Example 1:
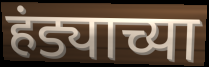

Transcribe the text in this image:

हंड्याच्या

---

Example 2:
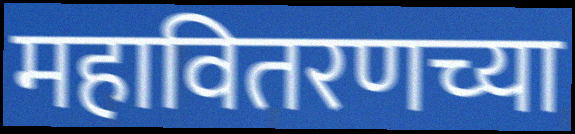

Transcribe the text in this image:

महावितरणच्या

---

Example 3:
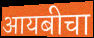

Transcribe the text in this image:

आयबीचा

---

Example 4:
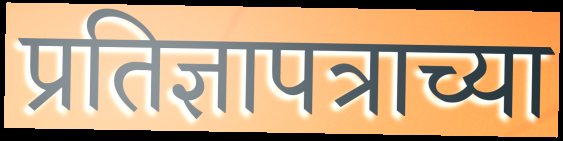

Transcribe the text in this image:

प्रतिज्ञापत्राच्या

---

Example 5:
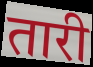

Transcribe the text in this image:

तारी